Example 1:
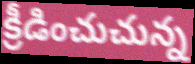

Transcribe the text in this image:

క్రీడించుచున్న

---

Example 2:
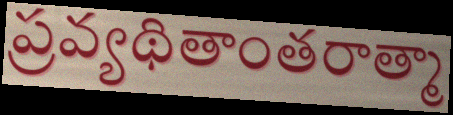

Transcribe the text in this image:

ప్రవ్యథితాంతరాత్మా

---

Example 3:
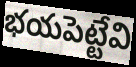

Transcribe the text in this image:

భయపెట్టేవి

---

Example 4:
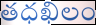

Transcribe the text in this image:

తధఖిలం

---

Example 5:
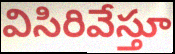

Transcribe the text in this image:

విసిరివేస్తూ